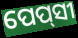
ପେପ୍‌ସୀ